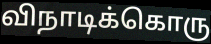
விநாடிக்கொரு